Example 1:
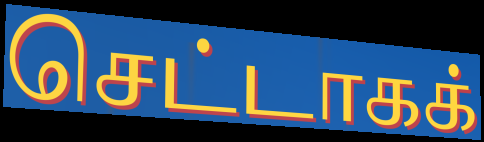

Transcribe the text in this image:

செட்டாகக்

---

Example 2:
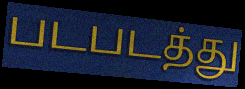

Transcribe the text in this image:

படபடத்து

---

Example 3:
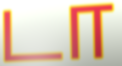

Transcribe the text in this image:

டா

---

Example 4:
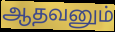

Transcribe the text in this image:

ஆதவனும்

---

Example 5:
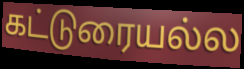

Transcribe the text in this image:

கட்டுரையல்ல